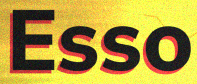
Esso